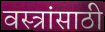
वस्त्रांसाठी